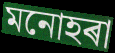
মনোহৰা